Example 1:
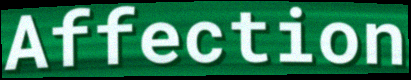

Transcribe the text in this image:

Affection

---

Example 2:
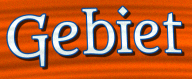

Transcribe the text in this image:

Gebiet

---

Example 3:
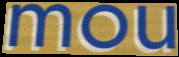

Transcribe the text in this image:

mou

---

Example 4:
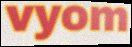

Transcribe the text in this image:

vyom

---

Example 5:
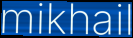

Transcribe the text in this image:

mikhail